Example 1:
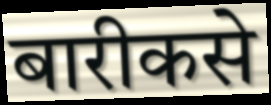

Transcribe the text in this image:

बारीकसे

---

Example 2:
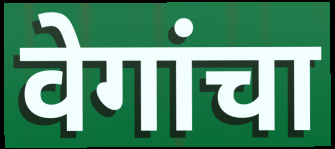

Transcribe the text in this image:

वेगांचा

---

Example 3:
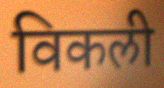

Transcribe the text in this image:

विकली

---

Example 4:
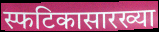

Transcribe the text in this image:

स्फटिकासारख्या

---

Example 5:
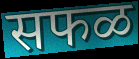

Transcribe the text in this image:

सफळ